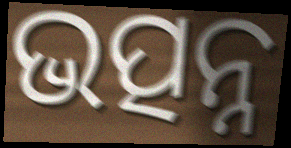
ଭତ୍ପନ୍ନ